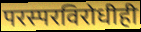
परस्परविरोधीही